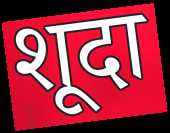
शूदा